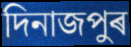
দিনাজপুৰ